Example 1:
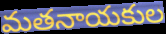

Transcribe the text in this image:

మతనాయకుల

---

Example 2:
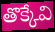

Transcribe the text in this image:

తొక్కేవి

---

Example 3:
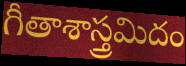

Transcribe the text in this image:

గీతాశాస్త్రమిదం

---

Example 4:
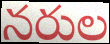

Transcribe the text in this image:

నరుల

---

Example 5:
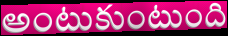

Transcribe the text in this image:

అంటుకుంటుంది